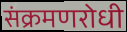
संक्रमणरोधी